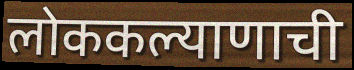
लोककल्याणाची